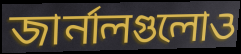
জার্নালগুলোও